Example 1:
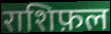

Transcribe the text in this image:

राशिफ़ल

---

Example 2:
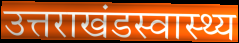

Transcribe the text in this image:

उत्तराखंडस्वास्थ्य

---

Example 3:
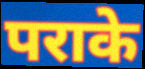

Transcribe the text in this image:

पराके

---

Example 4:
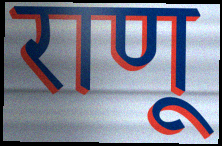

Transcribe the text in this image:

राणू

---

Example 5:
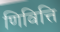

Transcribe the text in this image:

णिवित्ति